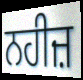
ਨਹੀਜ਼